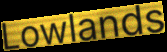
Lowlands